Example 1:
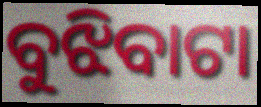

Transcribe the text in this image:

ବୁଝିବାଟା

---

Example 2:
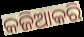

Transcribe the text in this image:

କଜିଆକରି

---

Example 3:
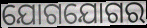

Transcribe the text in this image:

ଯୋଗଯୋଗର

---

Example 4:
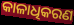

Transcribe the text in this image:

କାଳାଧିକରଣ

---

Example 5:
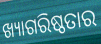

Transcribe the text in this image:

ଖ୍ୟାଗରିଷ୍ଠତାର